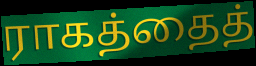
ராகத்தைத்